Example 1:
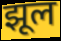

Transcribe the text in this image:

झूल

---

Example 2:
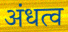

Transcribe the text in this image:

अंधत्व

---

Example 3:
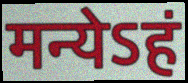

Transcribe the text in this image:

मन्येऽहं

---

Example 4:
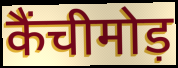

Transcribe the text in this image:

कैंचीमोड़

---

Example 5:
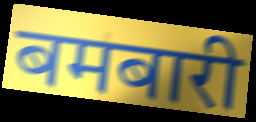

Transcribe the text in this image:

बमबारी